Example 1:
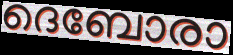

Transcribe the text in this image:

ദെബോരാ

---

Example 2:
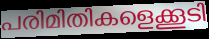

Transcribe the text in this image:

പരിമിതികളെക്കൂടി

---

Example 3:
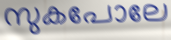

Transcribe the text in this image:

സുകപോലേ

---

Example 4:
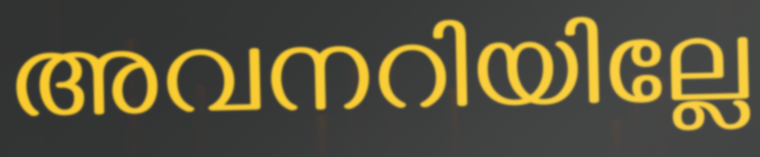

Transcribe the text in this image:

അവനറിയില്ലേ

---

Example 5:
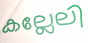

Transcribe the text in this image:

കല്ലേലി